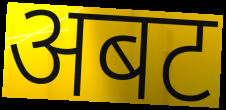
अबट